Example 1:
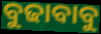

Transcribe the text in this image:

ବୁଢାବାବୁ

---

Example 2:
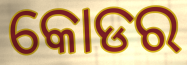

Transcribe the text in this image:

କୋଡର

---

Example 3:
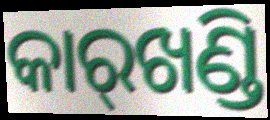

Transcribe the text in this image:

କାର୍‌ଖଣ୍ଡି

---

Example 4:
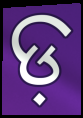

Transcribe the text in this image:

ଡ଼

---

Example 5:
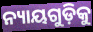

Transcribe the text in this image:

ନ୍ୟାୟଗୁଡ଼ିକୁ